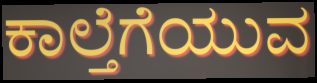
ಕಾಲ್ತೆಗೆಯುವ